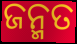
ଜନ୍ମତ